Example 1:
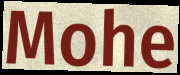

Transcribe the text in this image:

Mohe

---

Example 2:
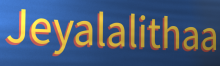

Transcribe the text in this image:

Jeyalalithaa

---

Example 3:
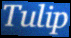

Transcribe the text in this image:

Tulip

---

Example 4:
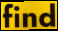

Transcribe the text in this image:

find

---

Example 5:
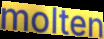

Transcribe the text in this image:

molten